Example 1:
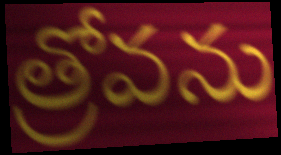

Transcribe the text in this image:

త్రోవను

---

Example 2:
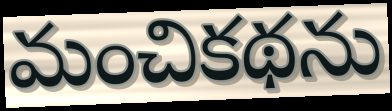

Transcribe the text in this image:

మంచికథను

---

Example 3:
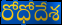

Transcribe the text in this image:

రోధోదేశ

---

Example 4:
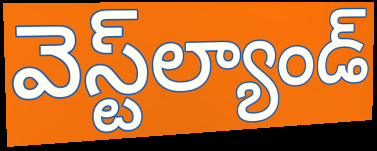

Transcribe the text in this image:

వెస్ట్‌ల్యాండ్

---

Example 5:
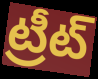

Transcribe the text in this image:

ట్రీట్